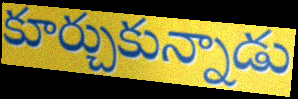
కూర్చుకున్నాడు